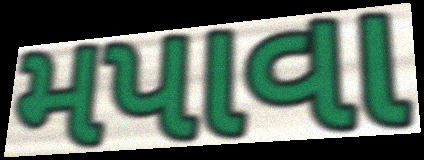
મપાવા